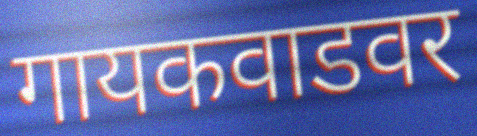
गायकवाडवर